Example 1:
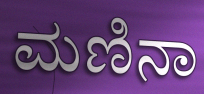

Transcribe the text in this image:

ಮಣಿನಾ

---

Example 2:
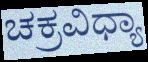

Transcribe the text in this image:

ಚಕ್ರವಿಧ್ಯಾ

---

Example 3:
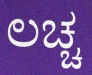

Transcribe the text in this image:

ಲಚ್ಚ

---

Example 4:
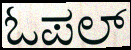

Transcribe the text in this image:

ಓಪಲ್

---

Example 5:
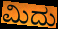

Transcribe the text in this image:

ಮಿದು